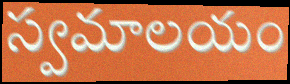
స్వమాలయం